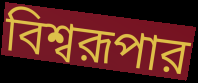
বিশ্বরূপার